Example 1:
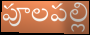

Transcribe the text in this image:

పూలపల్లి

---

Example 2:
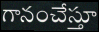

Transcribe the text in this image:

గానంచేస్తూ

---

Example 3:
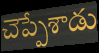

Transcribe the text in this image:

చెప్పేశాడు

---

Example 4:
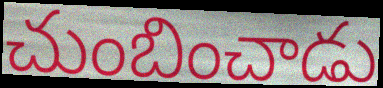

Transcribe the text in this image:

చుంబించాడు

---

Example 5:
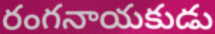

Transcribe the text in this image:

రంగనాయకుడు